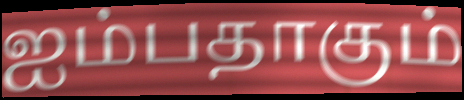
ஐம்பதாகும்